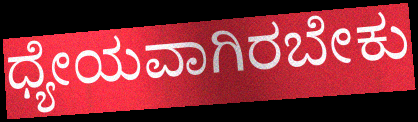
ಧ್ಯೇಯವಾಗಿರಬೇಕು